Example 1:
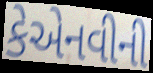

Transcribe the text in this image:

કેએનવીની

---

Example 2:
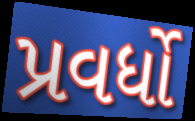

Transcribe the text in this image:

પ્રવર્ધો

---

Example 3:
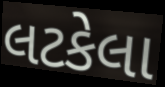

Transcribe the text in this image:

લટકેલા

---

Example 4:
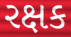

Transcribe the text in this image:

રક્ષક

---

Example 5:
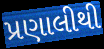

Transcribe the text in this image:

પ્રણાલીથી